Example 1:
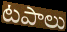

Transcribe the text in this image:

టపాలు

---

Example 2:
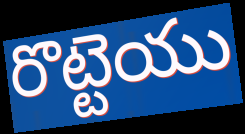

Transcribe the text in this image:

రొట్టెయు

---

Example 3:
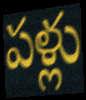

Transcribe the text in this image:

పళ్లు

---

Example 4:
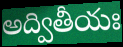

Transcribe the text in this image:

అద్వితీయః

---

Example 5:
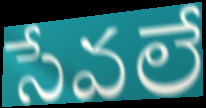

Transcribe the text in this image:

సేవలే